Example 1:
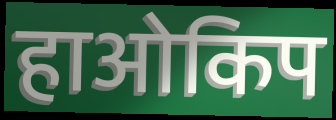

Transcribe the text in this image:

हाओकिप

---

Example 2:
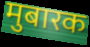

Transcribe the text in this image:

मुबारक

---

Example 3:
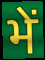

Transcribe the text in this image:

भें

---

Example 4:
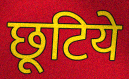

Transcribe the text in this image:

छूटिये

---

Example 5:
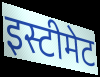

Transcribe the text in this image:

इस्टीमेट